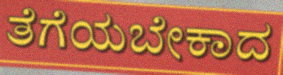
ತೆಗೆಯಬೇಕಾದ